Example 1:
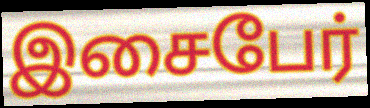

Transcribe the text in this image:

இசைபேர்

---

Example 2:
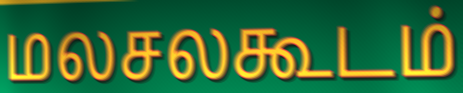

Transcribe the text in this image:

மலசலகூடம்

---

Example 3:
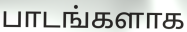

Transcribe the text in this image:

பாடங்களாக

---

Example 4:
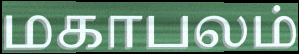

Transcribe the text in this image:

மகாபலம்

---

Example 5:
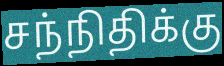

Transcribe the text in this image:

சந்நிதிக்கு